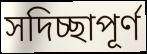
সদিচ্ছাপূর্ণ